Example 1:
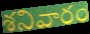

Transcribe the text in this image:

శనివారం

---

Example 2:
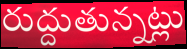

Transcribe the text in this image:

రుద్దుతున్నట్లు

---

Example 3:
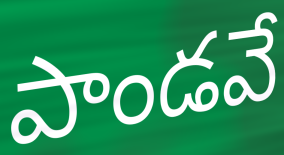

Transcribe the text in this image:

పాండవే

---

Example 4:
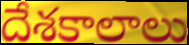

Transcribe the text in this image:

దేశకాలాలు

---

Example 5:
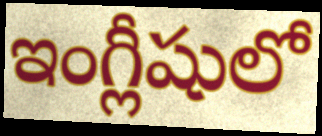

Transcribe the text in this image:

ఇంగ్లీషులో